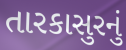
તારકાસુરનું